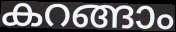
കറങ്ങാം